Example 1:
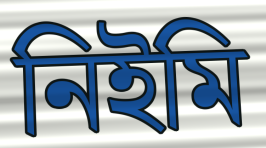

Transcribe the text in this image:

নিইমি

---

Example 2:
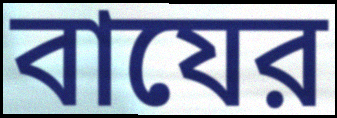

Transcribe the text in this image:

বাযের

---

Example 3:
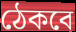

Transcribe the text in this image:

ঠেকবে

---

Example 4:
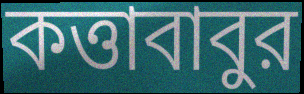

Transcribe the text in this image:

কত্তাবাবুর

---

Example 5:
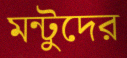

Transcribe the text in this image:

মন্টুদের